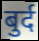
बुर्द